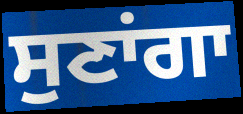
ਸੁਣਾਂਗਾ